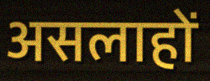
असलाहों